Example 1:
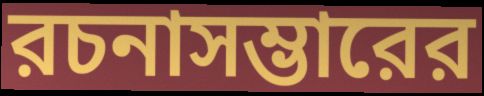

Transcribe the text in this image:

রচনাসম্ভারের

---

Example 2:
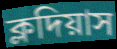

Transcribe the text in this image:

ক্লদিয়াস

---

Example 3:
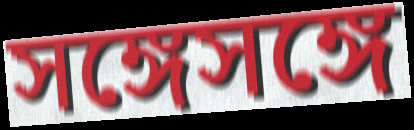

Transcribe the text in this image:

সঙ্গেসঙ্গে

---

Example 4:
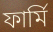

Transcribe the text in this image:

ফার্মি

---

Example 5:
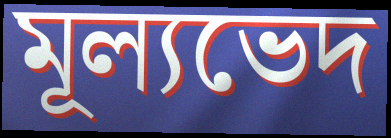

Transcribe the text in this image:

মূল্যভেদ